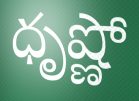
ధృష్ణో